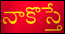
నాకొస్తే